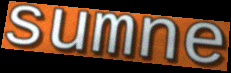
sumne